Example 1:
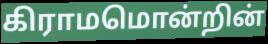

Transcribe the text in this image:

கிராமமொன்றின்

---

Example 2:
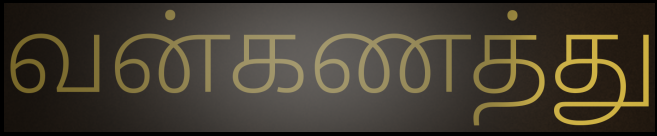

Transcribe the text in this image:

வன்கணத்து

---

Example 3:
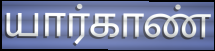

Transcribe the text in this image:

யார்காண்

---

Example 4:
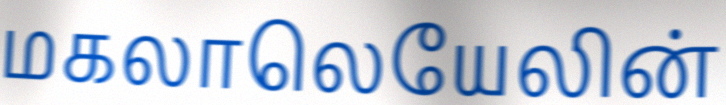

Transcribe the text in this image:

மகலாலெயேலின்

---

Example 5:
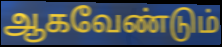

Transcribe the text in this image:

ஆகவேண்டும்